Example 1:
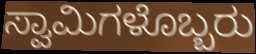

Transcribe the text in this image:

ಸ್ವಾಮಿಗಳೊಬ್ಬರು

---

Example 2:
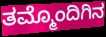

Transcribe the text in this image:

ತಮ್ಮೊಂದಿಗಿನ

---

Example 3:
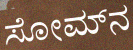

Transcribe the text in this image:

ಸೋಮ್‍ನ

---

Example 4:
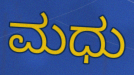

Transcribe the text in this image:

ಮಧು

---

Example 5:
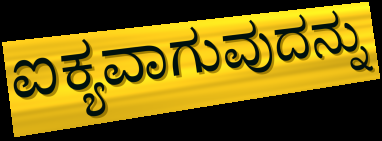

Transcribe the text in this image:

ಐಕ್ಯವಾಗುವುದನ್ನು